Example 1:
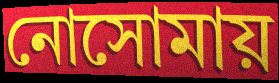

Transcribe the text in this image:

নোসোমায়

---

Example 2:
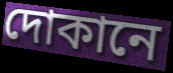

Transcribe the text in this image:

দোকানে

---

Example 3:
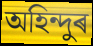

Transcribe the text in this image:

অহিন্দুৰ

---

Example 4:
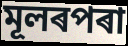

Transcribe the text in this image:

মূলৰপৰা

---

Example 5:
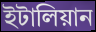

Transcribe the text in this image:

ইটালিয়ান